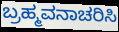
ಬ್ರಹ್ಮವನಾಚರಿಸಿ